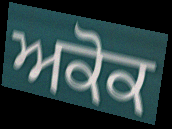
ਅਕੋਕ